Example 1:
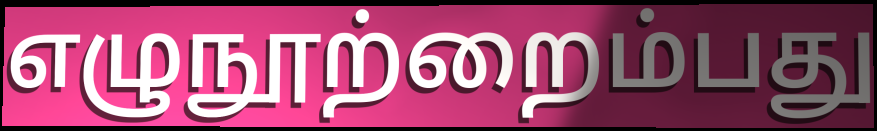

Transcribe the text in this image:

எழுநூற்றைம்பது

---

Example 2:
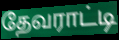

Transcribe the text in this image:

தேவராட்டி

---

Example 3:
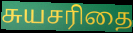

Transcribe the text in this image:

சுயசரிதை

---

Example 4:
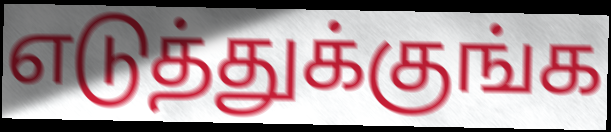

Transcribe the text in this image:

எடுத்துக்குங்க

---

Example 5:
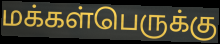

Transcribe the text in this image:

மக்கள்பெருக்கு